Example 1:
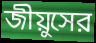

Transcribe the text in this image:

জীয়ুসের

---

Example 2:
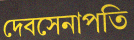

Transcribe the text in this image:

দেবসেনাপতি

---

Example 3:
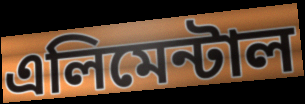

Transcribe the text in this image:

এলিমেন্টাল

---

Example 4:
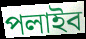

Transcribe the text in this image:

পলাইব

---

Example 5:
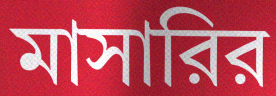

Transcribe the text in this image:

মাসারির